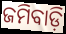
ଜମିବାଡ଼ି